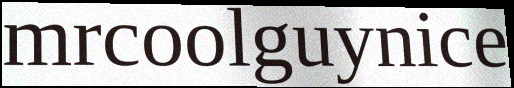
mrcoolguynice